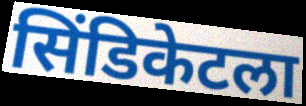
सिंडिकेटला